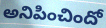
అనిపించిందో